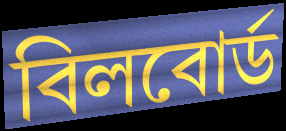
বিলবোর্ড